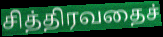
சித்திரவதைச்